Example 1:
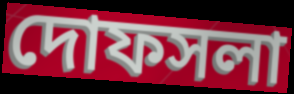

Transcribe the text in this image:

দোফসলা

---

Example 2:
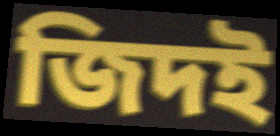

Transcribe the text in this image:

জিদই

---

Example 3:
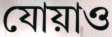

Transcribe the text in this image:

যোয়াও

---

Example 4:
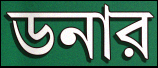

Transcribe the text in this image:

ডনার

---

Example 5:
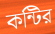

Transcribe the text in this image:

কন্টির